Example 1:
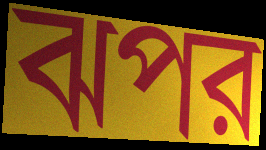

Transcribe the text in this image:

ঝপর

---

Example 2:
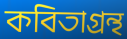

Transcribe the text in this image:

কবিতাগ্রন্থ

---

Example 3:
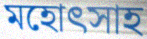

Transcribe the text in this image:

মহোৎসাহ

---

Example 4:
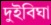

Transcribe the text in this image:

দুইবিঘা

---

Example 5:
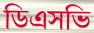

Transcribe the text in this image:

ডিএসভি